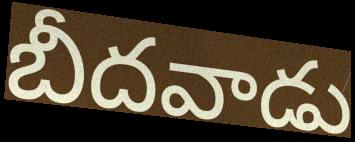
బీదవాడు